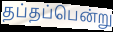
தப்தப்பென்று